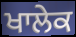
ਖਾਲੇਕ